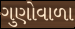
ગુણોવાળા